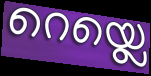
റെയ്ലെ